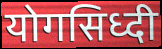
योगसिध्दी